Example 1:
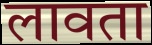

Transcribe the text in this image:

लावता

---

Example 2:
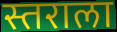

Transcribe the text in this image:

स्तराला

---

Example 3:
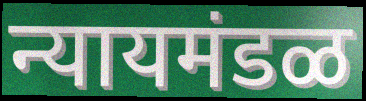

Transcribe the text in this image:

न्यायमंडळ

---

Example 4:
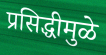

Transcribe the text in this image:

प्रसिद्धीमुळे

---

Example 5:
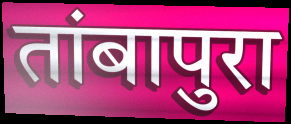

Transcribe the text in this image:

तांबापुरा